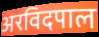
अरविदपाल